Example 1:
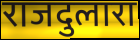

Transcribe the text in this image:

राजदुलारा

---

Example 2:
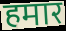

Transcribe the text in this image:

हमार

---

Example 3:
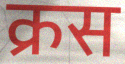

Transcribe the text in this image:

क्रस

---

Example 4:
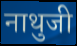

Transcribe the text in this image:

नाथुजी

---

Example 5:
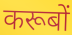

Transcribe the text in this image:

करूबों